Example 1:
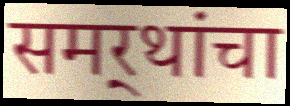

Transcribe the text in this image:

समर्थांचा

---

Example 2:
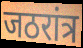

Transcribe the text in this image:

जठरांत्र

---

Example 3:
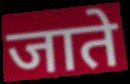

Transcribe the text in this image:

जाते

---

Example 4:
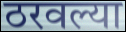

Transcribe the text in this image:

ठरवल्या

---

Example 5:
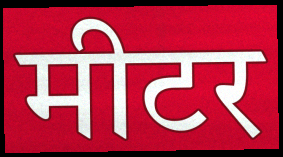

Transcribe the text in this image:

मीटर